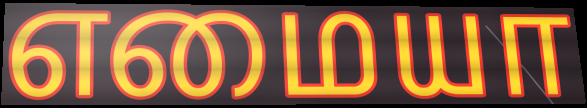
எமையா